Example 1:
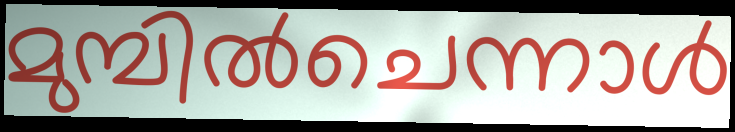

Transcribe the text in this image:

മുമ്പിൽചെന്നാൾ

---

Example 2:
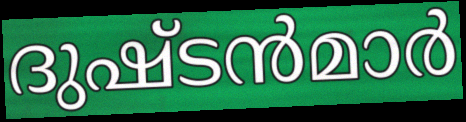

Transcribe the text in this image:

ദുഷ്ടൻമാർ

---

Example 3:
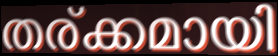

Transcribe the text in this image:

തര്ക്കമായി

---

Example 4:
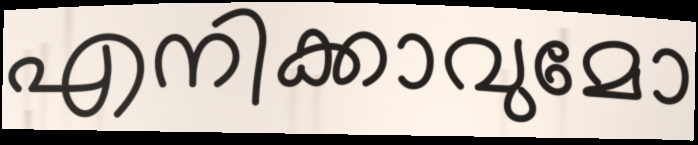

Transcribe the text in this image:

എനിക്കാവുമോ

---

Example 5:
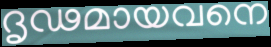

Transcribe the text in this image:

ദൃഢമായവനെ